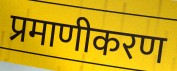
प्रमाणीकरण